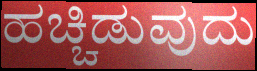
ಹಚ್ಚಿಡುವುದು